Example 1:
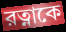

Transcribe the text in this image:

রত্নাকে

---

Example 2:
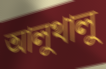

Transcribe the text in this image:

আলুথালু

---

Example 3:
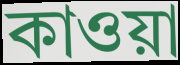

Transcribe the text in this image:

কাওয়া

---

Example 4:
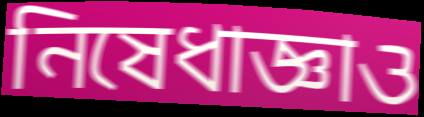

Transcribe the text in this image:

নিষেধাজ্ঞাও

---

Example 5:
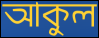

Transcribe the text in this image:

আকুল